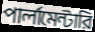
পার্লামেন্টারি